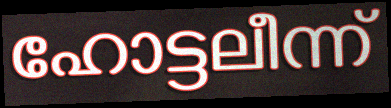
ഹോട്ടലീന്ന്